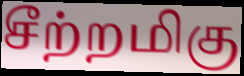
சீற்றமிகு